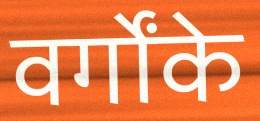
वर्गोंके